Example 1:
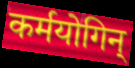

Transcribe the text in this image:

कर्मयोगिन्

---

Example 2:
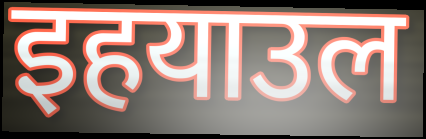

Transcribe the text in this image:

इहयाउल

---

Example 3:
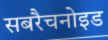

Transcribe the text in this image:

सबरैचनोइड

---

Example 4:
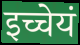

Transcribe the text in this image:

इच्चेयं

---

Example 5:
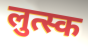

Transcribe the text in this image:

लुत्स्क